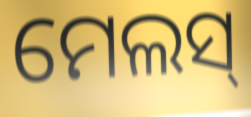
ମେଲସ୍